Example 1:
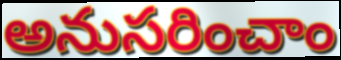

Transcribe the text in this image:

అనుసరించాం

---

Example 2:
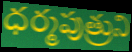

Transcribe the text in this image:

ధర్మపుత్రుని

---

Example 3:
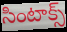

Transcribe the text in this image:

సింటాక్స్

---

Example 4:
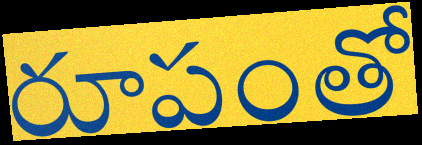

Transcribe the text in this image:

రూపంతో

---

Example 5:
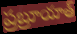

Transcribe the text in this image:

ప్రబ్రూయాత్